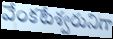
వేంకటేశ్వరునిగా